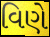
વિણે